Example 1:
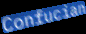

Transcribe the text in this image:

Confucian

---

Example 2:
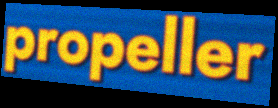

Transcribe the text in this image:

propeller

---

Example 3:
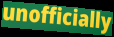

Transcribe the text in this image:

unofficially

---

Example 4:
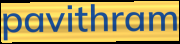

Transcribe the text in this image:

pavithram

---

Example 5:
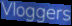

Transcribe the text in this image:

Vloggers